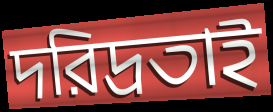
দরিদ্রতাই